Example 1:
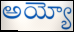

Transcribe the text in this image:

అయ్యో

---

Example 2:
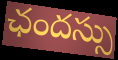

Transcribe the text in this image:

ఛందస్సు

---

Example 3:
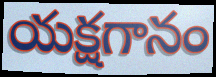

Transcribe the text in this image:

యక్షగానం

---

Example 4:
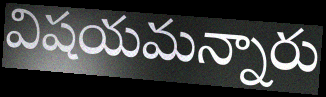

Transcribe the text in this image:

విషయమన్నారు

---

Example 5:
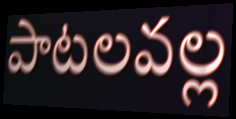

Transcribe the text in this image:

పాటలవల్ల